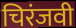
चिरंजवी